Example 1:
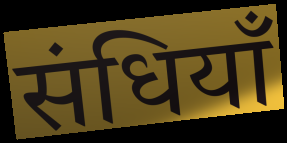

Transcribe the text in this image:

संधियाँ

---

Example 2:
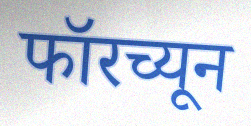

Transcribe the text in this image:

फॉरच्यून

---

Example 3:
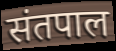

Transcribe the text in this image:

संतपाल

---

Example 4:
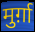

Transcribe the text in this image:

मुर्ग़ा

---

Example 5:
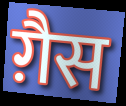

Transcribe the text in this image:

ग़ैस